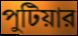
পুটিয়ার